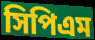
সিপিএম